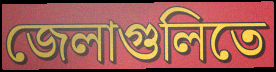
জেলাগুলিতে